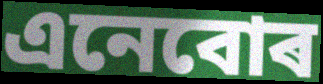
এনেবোৰ